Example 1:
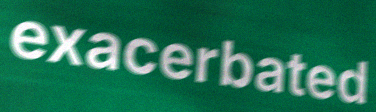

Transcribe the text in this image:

exacerbated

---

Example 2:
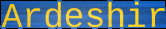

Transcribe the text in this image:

Ardeshir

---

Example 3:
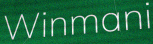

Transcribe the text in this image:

Winmani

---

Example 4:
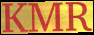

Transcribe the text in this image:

KMR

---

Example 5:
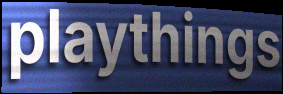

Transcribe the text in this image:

playthings